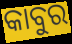
କାବୁର